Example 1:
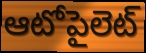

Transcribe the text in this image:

ఆటోపైలెట్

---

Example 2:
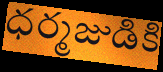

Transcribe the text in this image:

ధర్మజుడికి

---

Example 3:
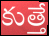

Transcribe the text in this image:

కుత్తే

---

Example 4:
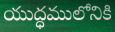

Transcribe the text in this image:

యుద్ధములోనికి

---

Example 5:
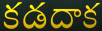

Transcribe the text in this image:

కడదాక